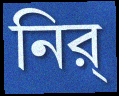
নির্